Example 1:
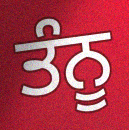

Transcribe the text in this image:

ਤੰਨੂ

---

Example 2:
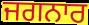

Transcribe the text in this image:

ਜਗਨਾਰ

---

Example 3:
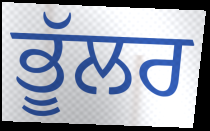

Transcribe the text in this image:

ਭੂੱਲਰ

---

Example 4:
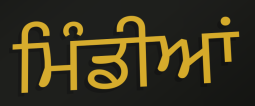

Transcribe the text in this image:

ਮਿੰਡੀਆਂ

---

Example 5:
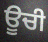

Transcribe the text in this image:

ਊਚੀ